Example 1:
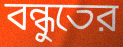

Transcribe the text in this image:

বন্ধুতের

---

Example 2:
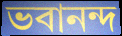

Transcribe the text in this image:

ভবানন্দ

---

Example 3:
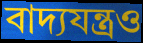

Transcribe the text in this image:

বাদ্যযন্ত্রও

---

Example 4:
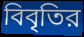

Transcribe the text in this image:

বিবৃতির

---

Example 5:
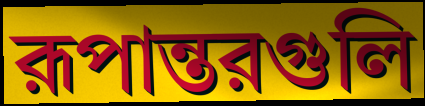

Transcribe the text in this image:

রূপান্তরগুলি